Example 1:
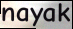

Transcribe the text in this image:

nayak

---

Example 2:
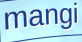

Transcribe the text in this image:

mangi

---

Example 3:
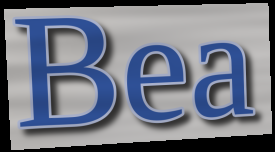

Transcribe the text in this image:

Bea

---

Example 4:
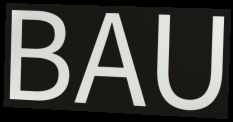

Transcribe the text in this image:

BAU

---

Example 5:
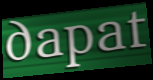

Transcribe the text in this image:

dapat